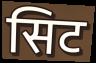
सिट